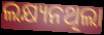
ଲକ୍ଷ୍ୟନଥିଲା